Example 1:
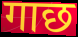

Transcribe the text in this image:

गाछ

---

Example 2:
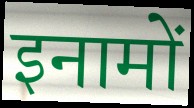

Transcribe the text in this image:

इनामों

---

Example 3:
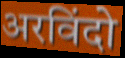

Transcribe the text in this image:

अरविंदो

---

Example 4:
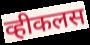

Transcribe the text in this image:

व्हीकलस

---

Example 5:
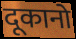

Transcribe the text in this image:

दूकानो